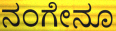
ನಂಗೇನೂ